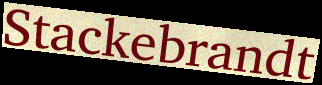
Stackebrandt